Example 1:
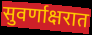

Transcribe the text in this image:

सुवर्णाक्षरात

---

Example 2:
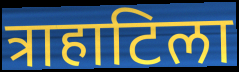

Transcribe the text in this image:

त्राहाटिला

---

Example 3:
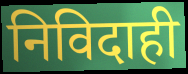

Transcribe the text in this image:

निविदाही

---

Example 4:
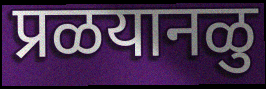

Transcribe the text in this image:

प्रळयानळु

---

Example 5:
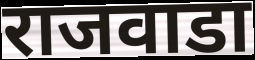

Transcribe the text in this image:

राजवाडा